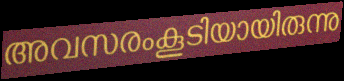
അവസരംകൂടിയായിരുന്നു